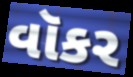
વૉકર